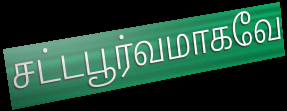
சட்டபூர்வமாகவே